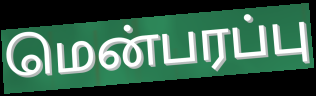
மென்பரப்பு